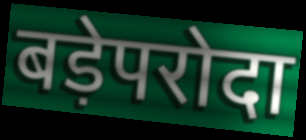
बड़ेपरोदा